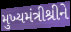
મુખ્યમંત્રીશ્રીને